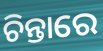
ଚିନ୍ତାରେ